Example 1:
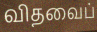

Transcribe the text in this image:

விதவைப்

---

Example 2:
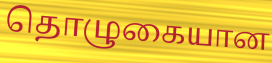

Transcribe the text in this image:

தொழுகையான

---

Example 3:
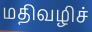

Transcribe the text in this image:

மதிவழிச்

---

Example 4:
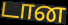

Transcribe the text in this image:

டான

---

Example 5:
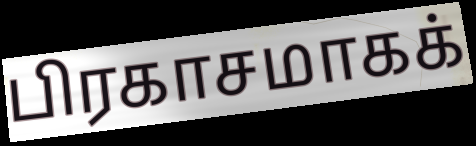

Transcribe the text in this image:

பிரகாசமாகக்